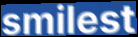
smilest